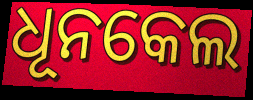
ଧୂନକେଲ